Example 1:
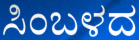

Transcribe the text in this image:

ಸಿಂಬಳದ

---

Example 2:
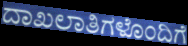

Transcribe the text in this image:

ದಾಖಲಾತಿಗಳೊಂದಿಗೆ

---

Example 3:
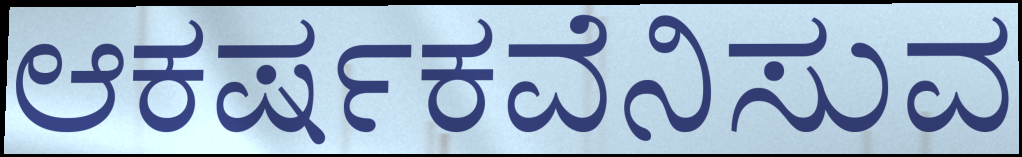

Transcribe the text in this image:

ಆಕರ್ಷಕವೆನಿಸುವ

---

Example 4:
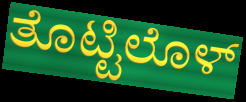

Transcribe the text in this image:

ತೊಟ್ಟಿಲೊಳ್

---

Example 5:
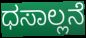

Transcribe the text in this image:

ಧಸಾಲ್ಲನೆ